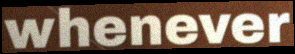
whenever